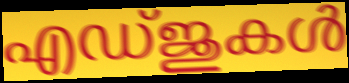
എഡ്ജുകൾ